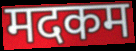
मदकम